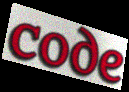
code